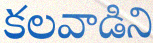
కలవాడిని